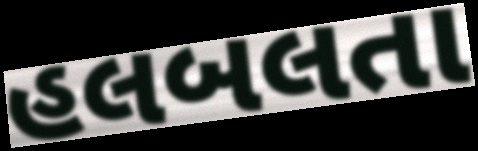
હલબલતા